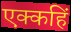
एक्कहिं